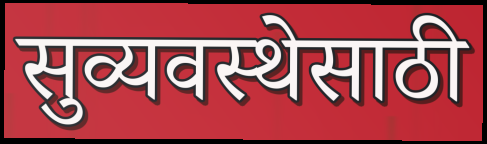
सुव्यवस्थेसाठी